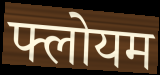
फ्लोयम